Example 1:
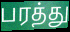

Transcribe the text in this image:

பரத்து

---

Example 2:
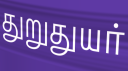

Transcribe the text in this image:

துறுதுயர்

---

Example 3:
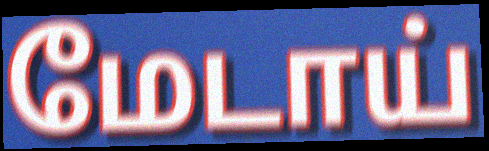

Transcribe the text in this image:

மேடாய்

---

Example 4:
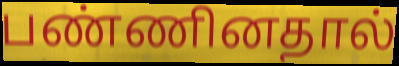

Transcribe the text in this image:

பண்ணினதால்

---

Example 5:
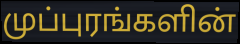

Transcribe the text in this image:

முப்புரங்களின்